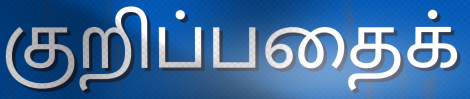
குறிப்பதைக்